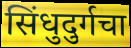
सिंधुदुर्गचा